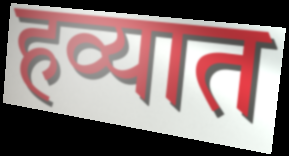
हव्यात